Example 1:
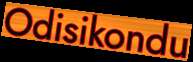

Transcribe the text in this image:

Odisikondu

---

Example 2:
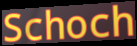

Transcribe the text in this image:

Schoch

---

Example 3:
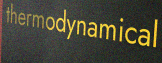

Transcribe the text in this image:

thermodynamical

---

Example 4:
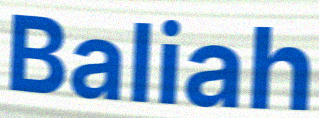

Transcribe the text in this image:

Baliah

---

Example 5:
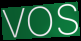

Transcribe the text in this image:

VOS